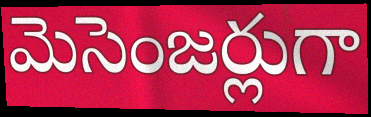
మెసెంజర్లుగా